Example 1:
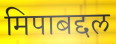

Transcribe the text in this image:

मिपाबद्दल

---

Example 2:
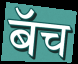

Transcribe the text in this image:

बॅच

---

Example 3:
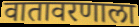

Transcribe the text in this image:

वातावरणाला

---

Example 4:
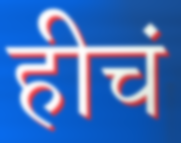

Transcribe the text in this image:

हीचं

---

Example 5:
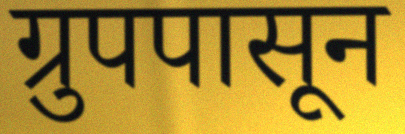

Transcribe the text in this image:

ग्रुपपासून